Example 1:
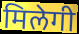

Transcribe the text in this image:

मिलेगी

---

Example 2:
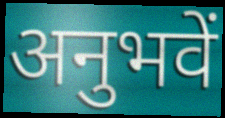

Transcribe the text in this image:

अनुभवें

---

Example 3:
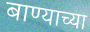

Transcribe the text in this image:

बाण्याच्या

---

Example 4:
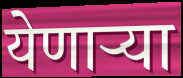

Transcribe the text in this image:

येणार्‍या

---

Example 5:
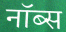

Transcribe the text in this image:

नॉब्स